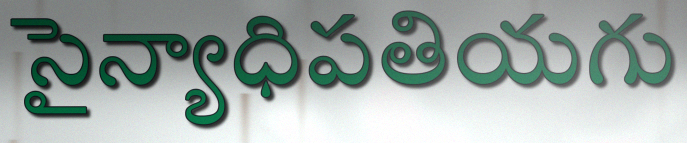
సైన్యాధిపతియగు